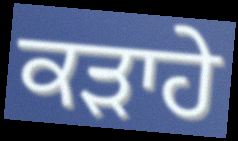
ਕੜਾਹੇ